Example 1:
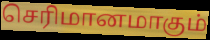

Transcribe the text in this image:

செரிமானமாகும்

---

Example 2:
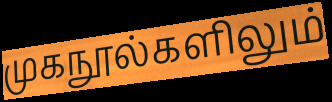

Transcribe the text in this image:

முகநூல்களிலும்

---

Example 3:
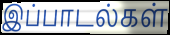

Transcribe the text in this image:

இப்பாடல்கள்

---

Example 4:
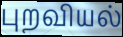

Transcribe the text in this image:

புறவியல்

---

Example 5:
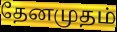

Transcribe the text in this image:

தேனமுதம்